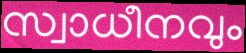
സ്വാധീനവും